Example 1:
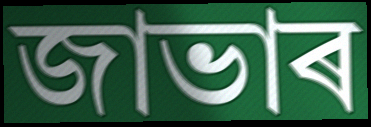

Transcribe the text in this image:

জাভাৰ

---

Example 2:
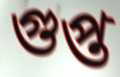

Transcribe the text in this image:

গুপ্ত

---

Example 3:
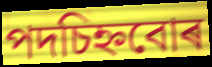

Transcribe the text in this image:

পদচিহ্নবোৰ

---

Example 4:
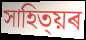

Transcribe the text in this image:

সাহিত্য়ৰ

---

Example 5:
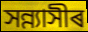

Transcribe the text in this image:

সন্ন্যাসীৰ